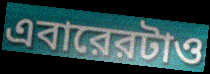
এবারেরটাও